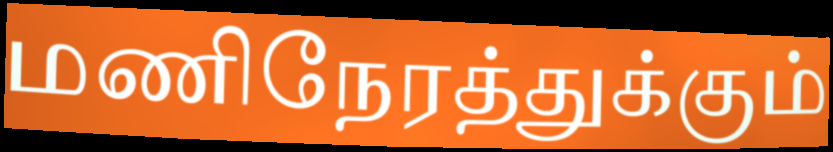
மணிநேரத்துக்கும்